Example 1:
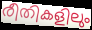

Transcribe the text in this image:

രീതികളിലും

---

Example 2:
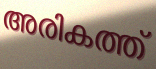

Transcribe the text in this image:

അരികത്ത്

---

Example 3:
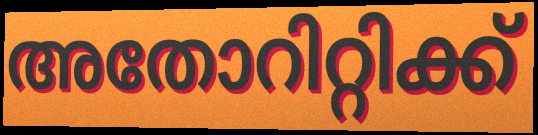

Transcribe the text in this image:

അതോറിറ്റിക്ക്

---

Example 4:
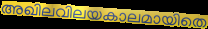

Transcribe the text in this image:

അഖിലവിലയകാലമായിതെ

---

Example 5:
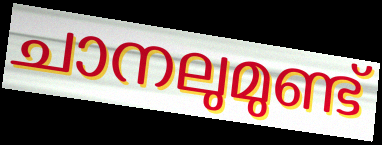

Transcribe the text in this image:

ചാനലുമുണ്ട്